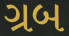
ગ્રબ